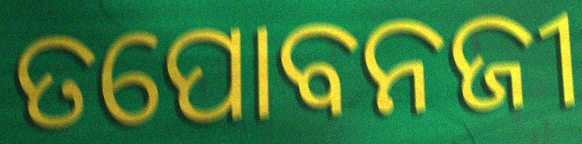
ତପୋବନଜୀ